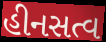
હીનસત્વ